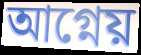
আগ্নেয়